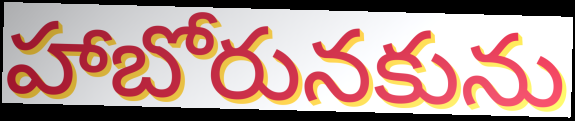
హాబోరునకును